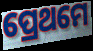
ପ୍ରେଥମେ